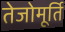
तेजोमूर्ति